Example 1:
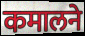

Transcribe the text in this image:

कमालने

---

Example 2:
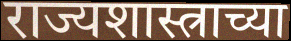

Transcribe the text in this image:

राज्यशास्त्राच्या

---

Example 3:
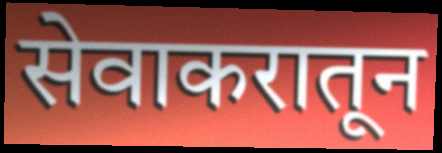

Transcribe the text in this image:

सेवाकरातून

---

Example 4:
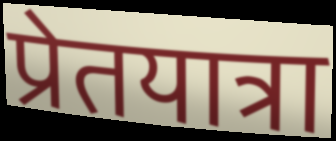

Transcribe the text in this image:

प्रेतयात्रा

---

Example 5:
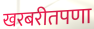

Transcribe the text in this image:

खरबरीतपणा